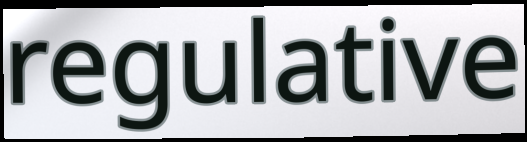
regulative